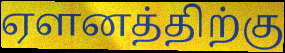
ஏளனத்திற்கு